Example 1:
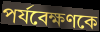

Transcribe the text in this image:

পর্যবেক্ষণকে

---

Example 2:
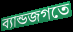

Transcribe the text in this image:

ব্যান্ডজগতে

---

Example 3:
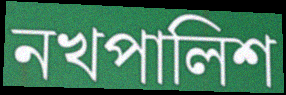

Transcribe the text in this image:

নখপালিশ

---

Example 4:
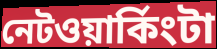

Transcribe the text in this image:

নেটওয়ার্কিংটা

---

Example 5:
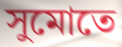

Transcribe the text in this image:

সুমোতে